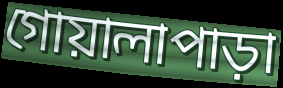
গোয়ালাপাড়া